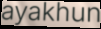
ayakhun